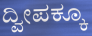
ದ್ವೀಪಕ್ಕೂ